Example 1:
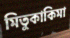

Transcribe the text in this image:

মিতুকাকিমা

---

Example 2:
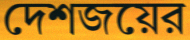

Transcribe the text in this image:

দেশজয়ের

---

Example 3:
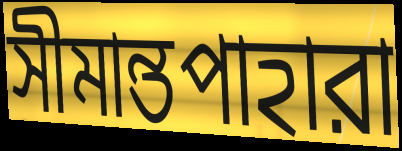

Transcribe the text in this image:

সীমান্তপাহারা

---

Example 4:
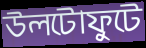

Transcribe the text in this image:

উলটোফুটে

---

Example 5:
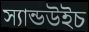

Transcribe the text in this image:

স্যান্ডউইচ